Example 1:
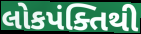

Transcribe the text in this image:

લોકપંક્તિથી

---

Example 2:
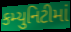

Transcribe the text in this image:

કમ્યુનિટીમાં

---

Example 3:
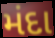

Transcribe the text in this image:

મંદા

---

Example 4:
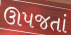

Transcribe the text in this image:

ઊપજતાં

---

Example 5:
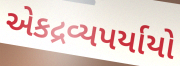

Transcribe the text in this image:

એકદ્રવ્યપર્યાયો